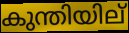
കുന്തിയില്